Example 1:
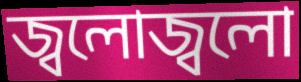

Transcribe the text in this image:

জ্বলোজ্বলো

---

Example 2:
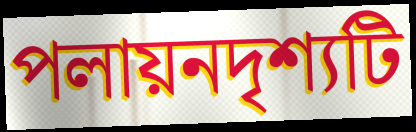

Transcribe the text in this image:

পলায়নদৃশ্যটি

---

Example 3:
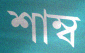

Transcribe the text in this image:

শাম্ব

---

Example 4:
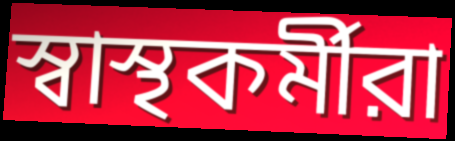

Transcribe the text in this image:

স্বাস্থকর্মীরা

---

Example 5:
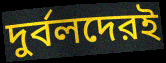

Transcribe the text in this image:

দুর্বলদেরই